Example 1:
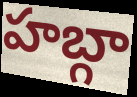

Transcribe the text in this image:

హబ్గా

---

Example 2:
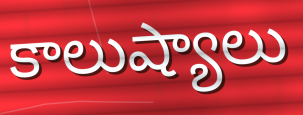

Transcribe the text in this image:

కాలుష్యాలు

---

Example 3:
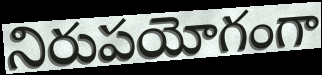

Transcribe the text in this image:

నిరుపయోగంగా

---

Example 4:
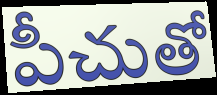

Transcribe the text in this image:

పీచుతో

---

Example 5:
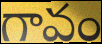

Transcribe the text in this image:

గావం